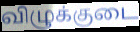
விழுக்குடை